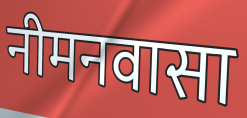
नीमनवासा